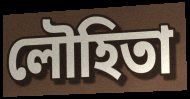
লৌহিতা